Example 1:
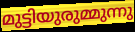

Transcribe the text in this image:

മുട്ടിയുരുമ്മുന്നു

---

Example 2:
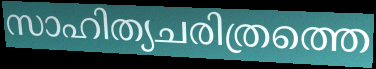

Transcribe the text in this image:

സാഹിത്യചരിത്രത്തെ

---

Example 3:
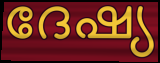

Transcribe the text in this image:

ദേഷ്യ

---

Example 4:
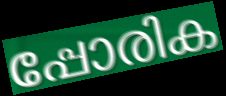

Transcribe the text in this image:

പ്പോരിക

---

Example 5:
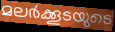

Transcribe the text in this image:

മലർക്കൂടയുടെ